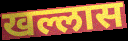
खल्लास